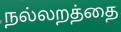
நல்லறத்தை